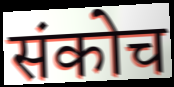
संकोच